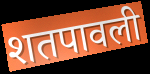
शतपावली